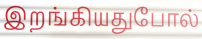
இறங்கியதுபோல்